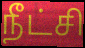
நீட்சி